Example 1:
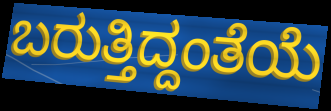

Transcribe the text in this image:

ಬರುತ್ತಿದ್ದಂತೆಯೆ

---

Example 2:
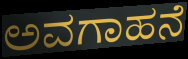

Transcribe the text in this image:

ಅವಗಾಹನೆ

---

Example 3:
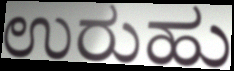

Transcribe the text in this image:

ಉರುಹು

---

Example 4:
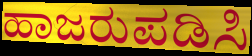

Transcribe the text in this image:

ಹಾಜರುಪಡಿಸಿ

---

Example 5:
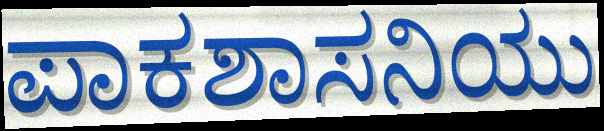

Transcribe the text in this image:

ಪಾಕಶಾಸನಿಯು